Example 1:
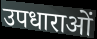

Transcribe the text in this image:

उपधाराओं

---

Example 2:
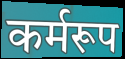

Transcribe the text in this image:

कर्मरूप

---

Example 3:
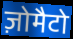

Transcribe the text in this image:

ज़ोमैटो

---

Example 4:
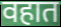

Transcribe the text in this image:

वहात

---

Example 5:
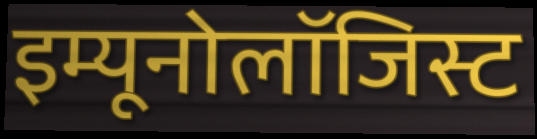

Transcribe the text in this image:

इम्यूनोलॉजिस्ट